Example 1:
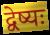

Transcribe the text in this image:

द्वेष्यः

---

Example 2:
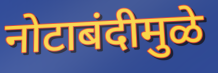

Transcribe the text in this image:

नोटाबंदीमुळे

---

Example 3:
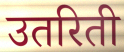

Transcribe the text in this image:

उतरिती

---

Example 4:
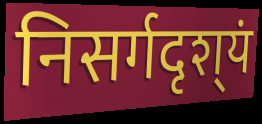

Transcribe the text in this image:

निसर्गदृश्यं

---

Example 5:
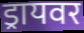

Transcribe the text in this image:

ड्रायवर